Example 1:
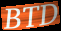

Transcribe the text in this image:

BTD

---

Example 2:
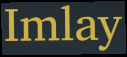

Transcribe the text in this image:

Imlay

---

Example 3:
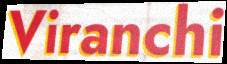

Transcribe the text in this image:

Viranchi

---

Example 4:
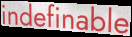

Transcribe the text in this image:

indefinable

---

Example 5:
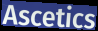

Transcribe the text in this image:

Ascetics